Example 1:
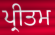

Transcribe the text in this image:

ਪ੍ਰੀਤਮ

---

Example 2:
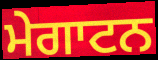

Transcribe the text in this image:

ਮੇਗਾਟਨ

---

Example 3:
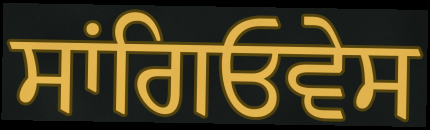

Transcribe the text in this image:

ਸਾਂਗਿਓਵੇਸ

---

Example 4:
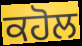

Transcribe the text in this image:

ਕਹੋਲ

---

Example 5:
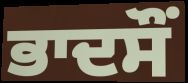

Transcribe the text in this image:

ਭਾਦਸੌਂ